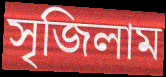
সৃজিলাম